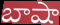
బాషా